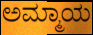
ಅಮ್ಮಾಯ